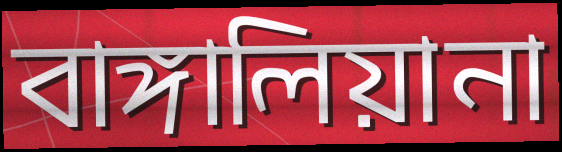
বাঙ্গালিয়ানা